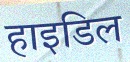
हाइडिल